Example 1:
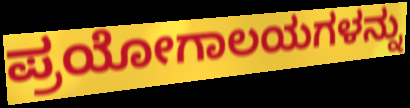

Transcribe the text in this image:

ಪ್ರಯೋಗಾಲಯಗಳನ್ನು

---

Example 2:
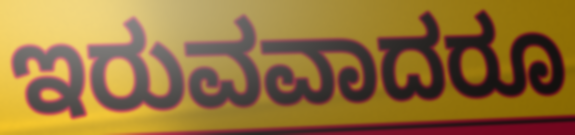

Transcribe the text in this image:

ಇರುವವಾದರೂ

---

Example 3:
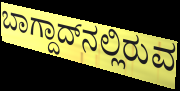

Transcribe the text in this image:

ಬಾಗ್ದಾದ್‌ನಲ್ಲಿರುವ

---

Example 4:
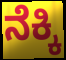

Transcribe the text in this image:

ನೆಕ್ಕಿ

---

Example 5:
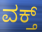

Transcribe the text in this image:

ವಕ್ತ್